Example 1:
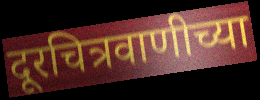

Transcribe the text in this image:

दूरचित्रवाणीच्या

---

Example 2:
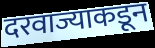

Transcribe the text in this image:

दरवाज्याकडून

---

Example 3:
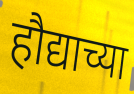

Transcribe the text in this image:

हौद्याच्या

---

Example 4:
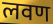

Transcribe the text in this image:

लवण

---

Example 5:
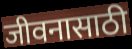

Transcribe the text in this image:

जीवनासाठी